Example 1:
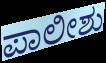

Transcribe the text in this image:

ಪಾಲೀಶು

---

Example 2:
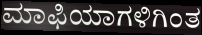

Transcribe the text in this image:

ಮಾಫಿಯಾಗಳಿಗಿಂತ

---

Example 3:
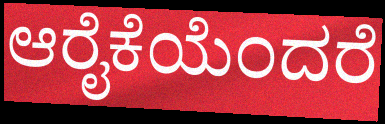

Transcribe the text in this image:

ಆರೈಕೆಯೆಂದರೆ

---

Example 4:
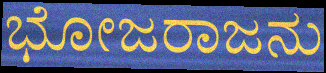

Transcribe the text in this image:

ಭೋಜರಾಜನು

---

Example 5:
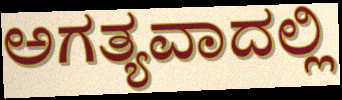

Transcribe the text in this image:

ಅಗತ್ಯವಾದಲ್ಲಿ